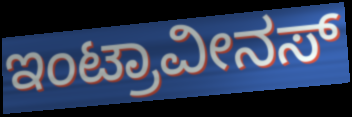
ಇಂಟ್ರಾವೀನಸ್